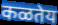
कळतेय